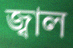
জ্বাল